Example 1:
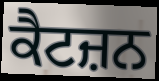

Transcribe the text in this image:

ਕੈਟਜ਼ਨ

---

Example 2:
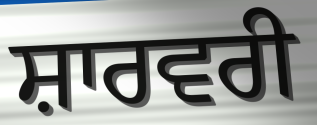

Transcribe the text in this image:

ਸ਼ਾਰਵਰੀ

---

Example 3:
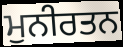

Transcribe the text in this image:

ਮੁਨੀਰਤਨ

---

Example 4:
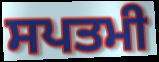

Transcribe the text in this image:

ਸਪਤਮੀ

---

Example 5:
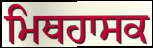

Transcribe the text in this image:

ਮਿਥਹਾਸਕ